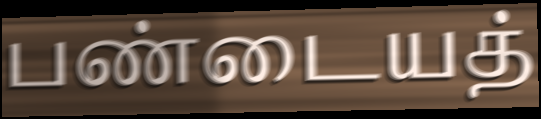
பண்டையத்